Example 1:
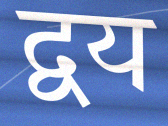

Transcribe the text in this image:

द्वय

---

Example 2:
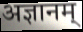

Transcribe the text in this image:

अज्ञानम्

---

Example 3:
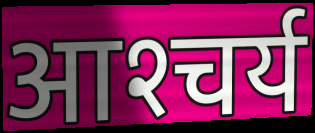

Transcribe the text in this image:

आश्चर्य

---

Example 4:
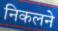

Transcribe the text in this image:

निकलने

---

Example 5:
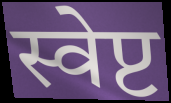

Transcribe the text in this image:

स्वेप्ट